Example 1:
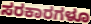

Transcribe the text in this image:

ಸರಕಾರಗಳೂ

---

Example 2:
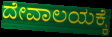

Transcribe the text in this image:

ದೇವಾಲಯಕ್ಕೆ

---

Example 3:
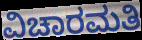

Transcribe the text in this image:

ವಿಚಾರಮತಿ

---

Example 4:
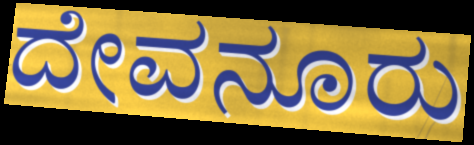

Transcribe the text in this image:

ದೇವನೂರು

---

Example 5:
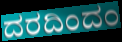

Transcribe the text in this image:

ದರದಿಂದಂ